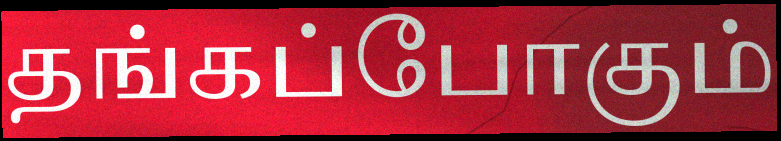
தங்கப்போகும்